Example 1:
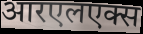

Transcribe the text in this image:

आरएलएक्स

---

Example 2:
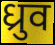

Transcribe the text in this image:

ध्रुव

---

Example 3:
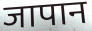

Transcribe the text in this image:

जापान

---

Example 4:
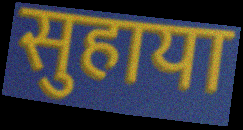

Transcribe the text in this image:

सुहाया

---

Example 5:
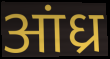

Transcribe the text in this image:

आंध्र